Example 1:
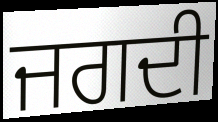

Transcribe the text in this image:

ਜਗਦੀ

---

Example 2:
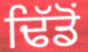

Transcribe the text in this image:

ਢਿੱਡੋਂ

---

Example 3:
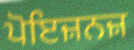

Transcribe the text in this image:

ਪੋਇਜ਼ਨਜ਼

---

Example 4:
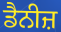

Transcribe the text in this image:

ਡੈਨੀਜ਼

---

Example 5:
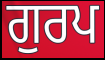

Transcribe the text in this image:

ਗੁਰਪ